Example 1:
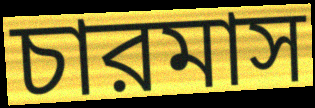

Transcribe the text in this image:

চারমাস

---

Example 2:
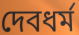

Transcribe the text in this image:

দেবধর্ম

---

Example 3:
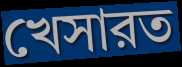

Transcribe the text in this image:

খেসারত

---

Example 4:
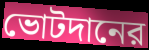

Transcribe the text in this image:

ভোটদানের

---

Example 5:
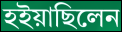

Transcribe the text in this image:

হইয়াছিলেন